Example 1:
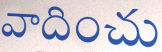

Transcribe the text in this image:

వాదించు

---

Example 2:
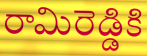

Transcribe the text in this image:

రామిరెడ్డికి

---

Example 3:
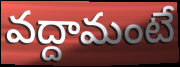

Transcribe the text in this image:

వద్దామంటే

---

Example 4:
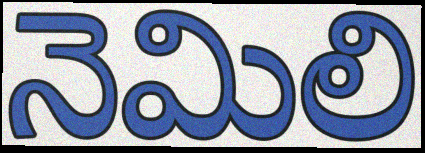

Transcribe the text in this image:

నెమిలి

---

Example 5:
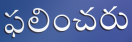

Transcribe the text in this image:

ఫలించరు